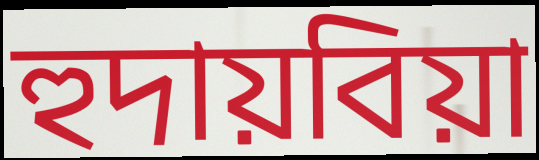
হুদায়বিয়া